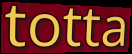
totta